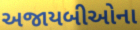
અજાયબીઓના